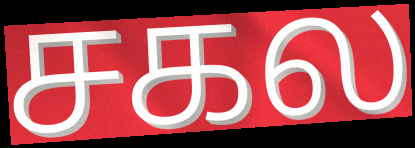
சகல